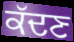
ਕੱਦਣ